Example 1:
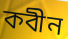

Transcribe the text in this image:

কবীন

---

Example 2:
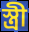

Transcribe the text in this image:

স্ত্ৰী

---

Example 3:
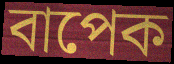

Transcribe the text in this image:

বাপেক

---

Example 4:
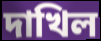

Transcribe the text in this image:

দাখিল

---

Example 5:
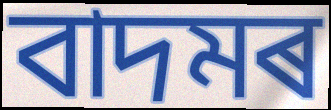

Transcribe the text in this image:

বাদমৰ